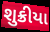
શુક્રીયા